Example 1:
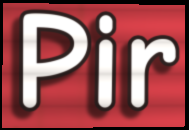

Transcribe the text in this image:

Pir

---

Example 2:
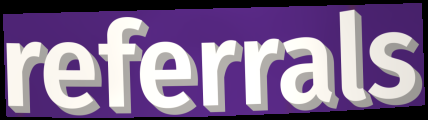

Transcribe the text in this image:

referrals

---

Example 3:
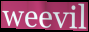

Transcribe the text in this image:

weevil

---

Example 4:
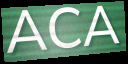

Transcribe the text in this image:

ACA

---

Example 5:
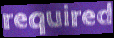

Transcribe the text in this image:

required